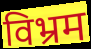
विभ्रम